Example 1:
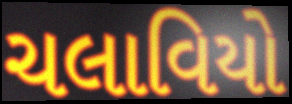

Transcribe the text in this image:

ચલાવિયો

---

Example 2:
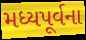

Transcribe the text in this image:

મધ્યપૂર્વના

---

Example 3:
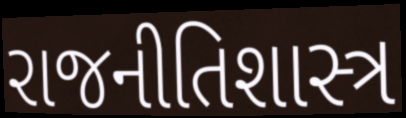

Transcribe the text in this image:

રાજનીતિશાસ્ત્ર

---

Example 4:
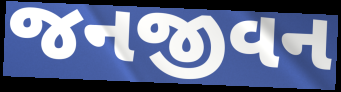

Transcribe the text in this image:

જનજીવન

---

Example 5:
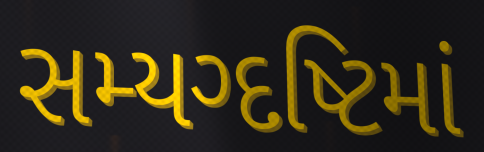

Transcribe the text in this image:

સમ્યગ્દષ્ટિમાં